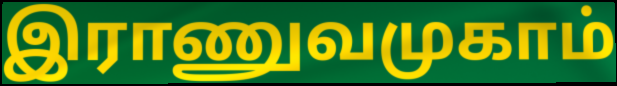
இராணுவமுகாம்